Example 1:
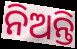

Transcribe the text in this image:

ନିଅନ୍ତି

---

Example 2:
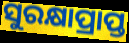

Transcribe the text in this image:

ସୁରକ୍ଷାପ୍ରାପ୍ତ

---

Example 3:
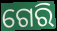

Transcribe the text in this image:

ଗେରି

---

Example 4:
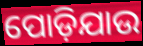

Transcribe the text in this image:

ପୋଡ଼ିଯାଉ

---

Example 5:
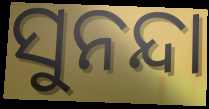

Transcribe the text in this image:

ସୁନନ୍ଦା